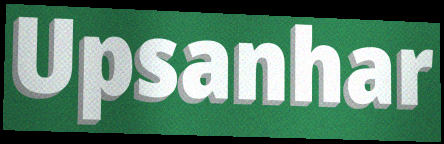
Upsanhar